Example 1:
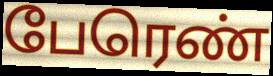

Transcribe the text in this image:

பேரெண்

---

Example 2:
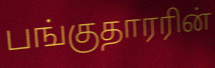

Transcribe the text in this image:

பங்குதாரரின்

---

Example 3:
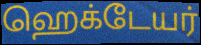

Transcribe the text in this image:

ஹெக்டேயர்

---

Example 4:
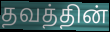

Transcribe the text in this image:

தவத்தின்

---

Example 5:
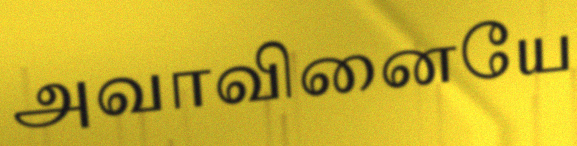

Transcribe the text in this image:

அவாவினையே